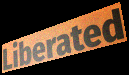
Liberated